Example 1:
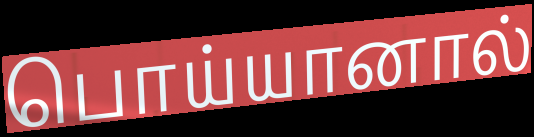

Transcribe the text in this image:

பொய்யானால்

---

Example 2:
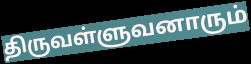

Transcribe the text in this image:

திருவள்ளுவனாரும்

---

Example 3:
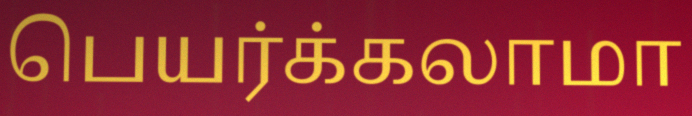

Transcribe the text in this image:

பெயர்க்கலாமா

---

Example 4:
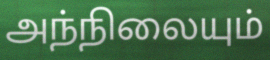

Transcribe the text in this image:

அந்நிலையும்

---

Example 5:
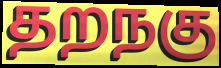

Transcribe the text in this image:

தறநகு